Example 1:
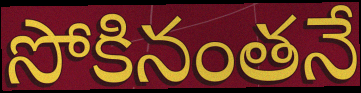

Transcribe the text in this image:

సోకినంతనే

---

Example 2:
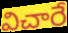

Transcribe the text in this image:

విచారే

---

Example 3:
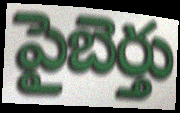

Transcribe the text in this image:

పైబెర్తు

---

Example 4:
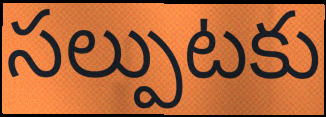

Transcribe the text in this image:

సల్పుటకు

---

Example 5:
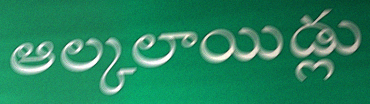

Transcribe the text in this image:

ఆల్కలాయిడ్లు